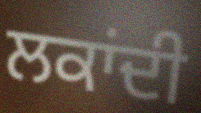
ਲਕਾਂਦੀ